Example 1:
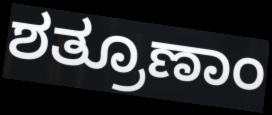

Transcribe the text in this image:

ಶತ್ರೂಣಾಂ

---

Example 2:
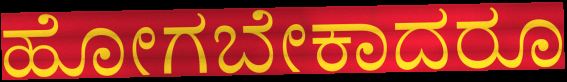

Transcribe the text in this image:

ಹೋಗಬೇಕಾದರೂ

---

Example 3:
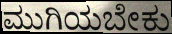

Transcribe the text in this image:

ಮುಗಿಯಬೇಕು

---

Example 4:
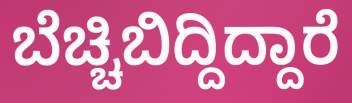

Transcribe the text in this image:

ಬೆಚ್ಚಿಬಿದ್ದಿದ್ದಾರೆ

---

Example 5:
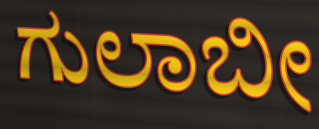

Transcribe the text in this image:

ಗುಲಾಬೀ